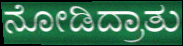
ನೋಡಿದ್ರಾತು